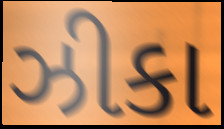
ઝીકા